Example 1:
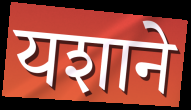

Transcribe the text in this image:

यशाने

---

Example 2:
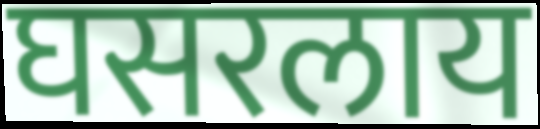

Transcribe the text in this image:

घसरलाय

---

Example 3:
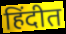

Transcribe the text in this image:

हिंदीत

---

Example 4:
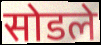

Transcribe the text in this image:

सोडले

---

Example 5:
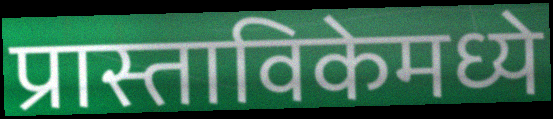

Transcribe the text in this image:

प्रास्ताविकेमध्ये